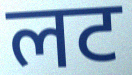
लट